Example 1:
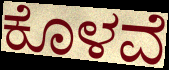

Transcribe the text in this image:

ಕೊಳವೆ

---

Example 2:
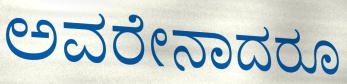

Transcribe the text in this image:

ಅವರೇನಾದರೂ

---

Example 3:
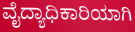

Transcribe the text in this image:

ವೈದ್ಯಾಧಿಕಾರಿಯಾಗಿ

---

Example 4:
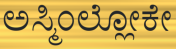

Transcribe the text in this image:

ಅಸ್ಮಿಂಲ್ಲೋಕೇ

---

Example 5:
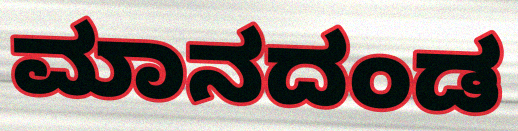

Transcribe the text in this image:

ಮಾನದಂಡ